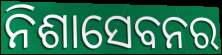
ନିଶାସେବନର